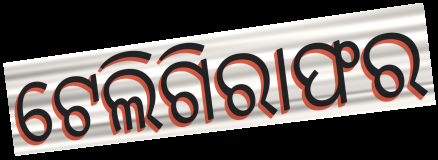
ଟେଲିଗିରାଫର